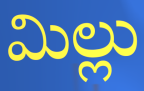
మిల్లు